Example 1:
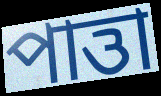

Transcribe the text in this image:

পাত্তা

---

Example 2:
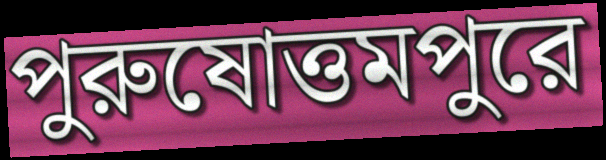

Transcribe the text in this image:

পুরুষোত্তমপুরে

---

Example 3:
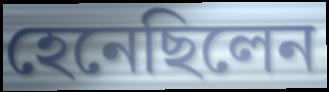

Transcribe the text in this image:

হেনেছিলেন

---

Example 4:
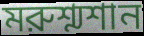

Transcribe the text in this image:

মরুশ্মশান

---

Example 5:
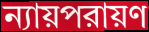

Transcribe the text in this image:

ন্যায়পরায়ণ